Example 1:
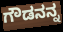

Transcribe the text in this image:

ಗೌಡನನ್ನ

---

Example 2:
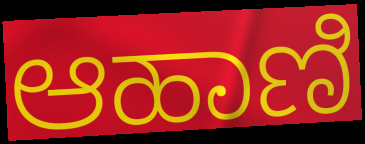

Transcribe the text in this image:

ಆಹಾಣಿ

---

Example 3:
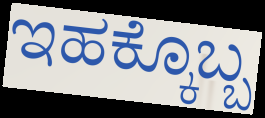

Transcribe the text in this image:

ಇಹಕ್ಕೊಬ್ಬ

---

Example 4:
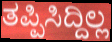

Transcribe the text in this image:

ತಪ್ಪಿಸಿದ್ದಿಲ್ಲ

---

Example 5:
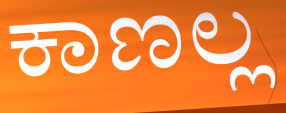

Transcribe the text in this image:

ಕಾಣಲ್ಲ